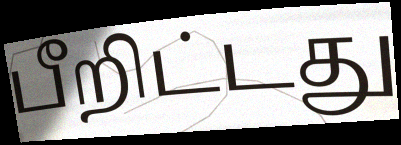
பீறிட்டது